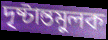
দৃষ্টান্তমুলক